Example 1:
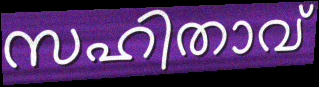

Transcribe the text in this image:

സഹിതാവ്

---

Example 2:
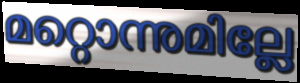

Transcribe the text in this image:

മറ്റൊന്നുമില്ലേ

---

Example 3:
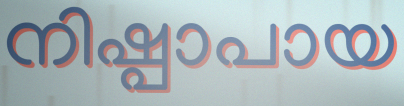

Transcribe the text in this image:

നിഷ്പാപായ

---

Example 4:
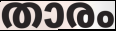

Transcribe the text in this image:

താരം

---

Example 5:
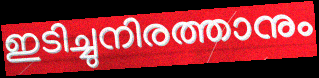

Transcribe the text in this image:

ഇടിച്ചുനിരത്താനും